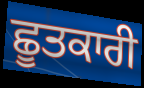
ਛੂਤਕਾਰੀ